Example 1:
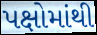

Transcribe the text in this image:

પક્ષોમાંથી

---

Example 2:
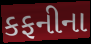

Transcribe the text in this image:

કફનીના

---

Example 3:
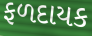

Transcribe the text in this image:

ફળદાયક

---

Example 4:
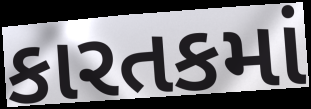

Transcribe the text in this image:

કારતકમાં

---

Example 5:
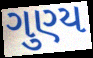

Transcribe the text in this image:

ગુણ્ય